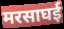
मरसाघई